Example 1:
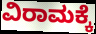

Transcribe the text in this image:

ವಿರಾಮಕ್ಕೆ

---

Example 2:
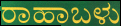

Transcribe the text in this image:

ರಾಹಾಬಳು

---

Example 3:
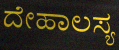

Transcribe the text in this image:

ದೇಹಾಲಸ್ಯ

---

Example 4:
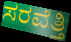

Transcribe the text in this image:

ಸರವೆತ್ತಿ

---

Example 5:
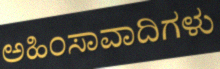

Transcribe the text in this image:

ಅಹಿಂಸಾವಾದಿಗಳು